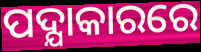
ପଦ୍ଯାକାରରେ